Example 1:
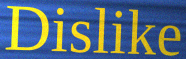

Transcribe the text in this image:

Dislike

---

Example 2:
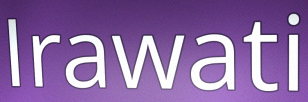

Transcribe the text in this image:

Irawati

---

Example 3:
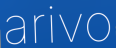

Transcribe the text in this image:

arivo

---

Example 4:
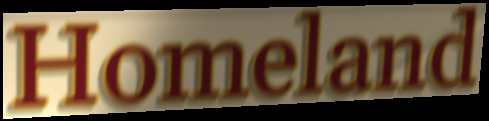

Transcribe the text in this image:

Homeland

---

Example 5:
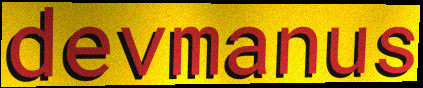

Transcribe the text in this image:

devmanus